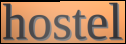
hostel